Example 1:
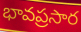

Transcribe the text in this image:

భావప్రసార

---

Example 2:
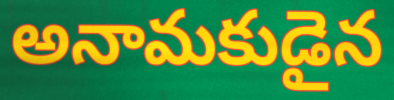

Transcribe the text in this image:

అనామకుడైన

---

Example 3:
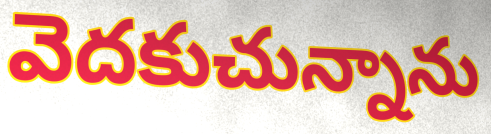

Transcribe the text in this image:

వెదకుచున్నాను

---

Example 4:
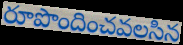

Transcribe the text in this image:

రూపొందించవలసిన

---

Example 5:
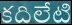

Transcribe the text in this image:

కదిలేటి